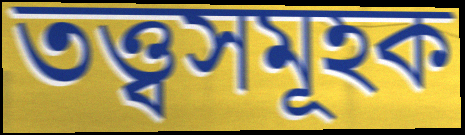
তত্ত্বসমূহক